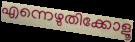
എന്നെഴുതിക്കോളൂ